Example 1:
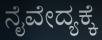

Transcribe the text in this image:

ನೈವೇದ್ಯಕ್ಕೆ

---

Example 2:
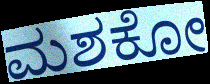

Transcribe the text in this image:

ಮಶಕೋ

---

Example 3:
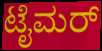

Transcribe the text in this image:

ಟೈಮರ್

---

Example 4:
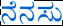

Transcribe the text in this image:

ನೆನಸು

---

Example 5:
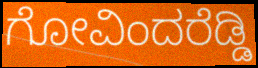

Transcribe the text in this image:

ಗೋವಿಂದರೆಡ್ಡಿ